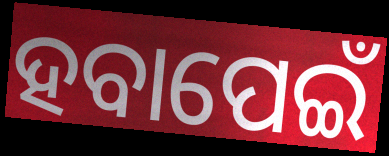
ହବାପେଇଁ